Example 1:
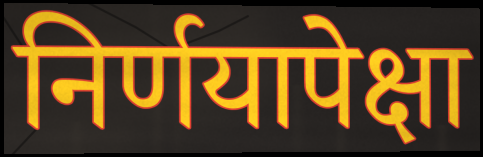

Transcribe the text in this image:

निर्णयापेक्षा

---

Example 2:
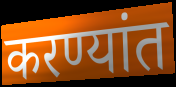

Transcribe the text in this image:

करण्यांत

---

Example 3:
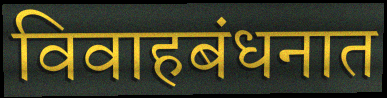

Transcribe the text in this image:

विवाहबंधनात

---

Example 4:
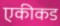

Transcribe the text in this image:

एकीकड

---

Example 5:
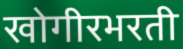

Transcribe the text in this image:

खोगीरभरती